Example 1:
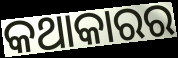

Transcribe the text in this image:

କଥାକାରର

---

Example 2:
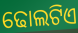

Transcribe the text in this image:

ଢୋଲଟିଏ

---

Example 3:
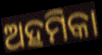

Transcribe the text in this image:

ଅହମିକା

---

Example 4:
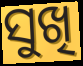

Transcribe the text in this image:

ସୁଖି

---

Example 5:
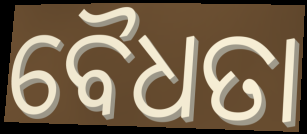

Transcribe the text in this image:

ବୈଧତା